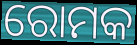
ରୋମକ